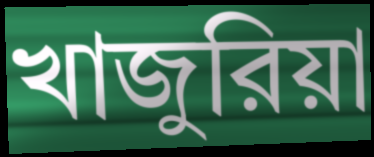
খাজুরিয়া